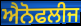
ਐਨੋਫਲੀਜ